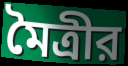
মৈত্রীর